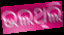
ଭଲଥିଲି